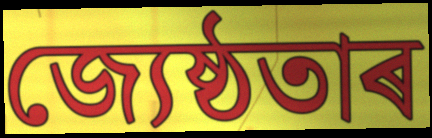
জ্যেষ্ঠতাৰ